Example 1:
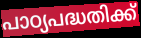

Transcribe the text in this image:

പാഠ്യപദ്ധതിക്ക്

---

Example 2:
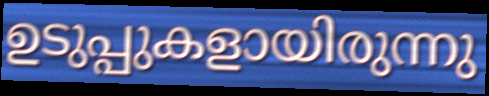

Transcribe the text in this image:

ഉടുപ്പുകളായിരുന്നു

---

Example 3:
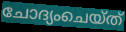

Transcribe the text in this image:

ചോദ്യംചെയ്ത്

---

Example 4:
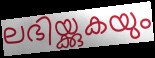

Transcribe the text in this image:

ലഭിയ്ക്കുകയും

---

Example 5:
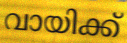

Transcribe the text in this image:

വായിക്ക്